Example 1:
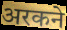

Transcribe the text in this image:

अरकने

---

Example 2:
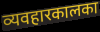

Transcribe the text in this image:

व्यवहारकालका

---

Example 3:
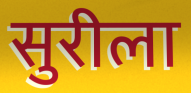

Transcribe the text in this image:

सुरीला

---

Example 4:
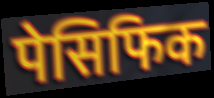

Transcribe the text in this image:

पेसिफिक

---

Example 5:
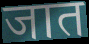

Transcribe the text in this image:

जात